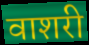
वाशरी